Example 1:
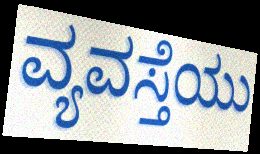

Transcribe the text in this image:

ವ್ಯವಸ್ತೆಯು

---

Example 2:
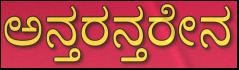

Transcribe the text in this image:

ಅನ್ತರನ್ತರೇನ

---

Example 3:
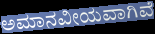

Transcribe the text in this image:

ಅಮಾನವೀಯವಾಗಿವೆ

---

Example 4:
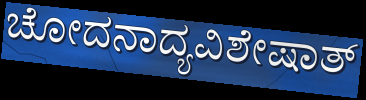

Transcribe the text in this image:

ಚೋದನಾದ್ಯವಿಶೇಷಾತ್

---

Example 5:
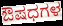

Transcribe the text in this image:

ಔಷಧಗಳ